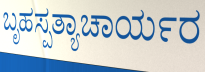
ಬೃಹಸ್ಪತ್ಯಾಚಾರ್ಯರ